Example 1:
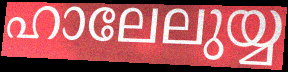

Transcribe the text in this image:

ഹാലേലുയ്യ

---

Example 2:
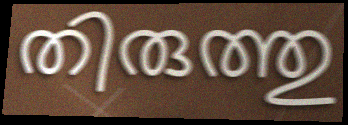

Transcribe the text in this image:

തിരുത്തു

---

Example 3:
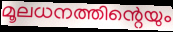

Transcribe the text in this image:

മൂലധനത്തിന്റെയും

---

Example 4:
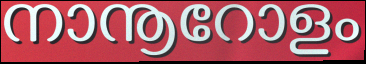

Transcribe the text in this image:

നാനൂറോളം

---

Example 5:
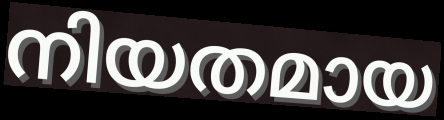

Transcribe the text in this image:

നിയതമായ